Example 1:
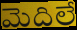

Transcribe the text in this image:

మెదిలే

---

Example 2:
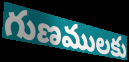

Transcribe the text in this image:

గుణములకు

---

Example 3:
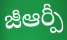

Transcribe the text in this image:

జీఆర్పీ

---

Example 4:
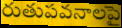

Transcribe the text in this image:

రుతుపవనాలపై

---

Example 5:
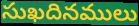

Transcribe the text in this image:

సుఖదినములు